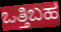
ಒತ್ತಿಬಹ